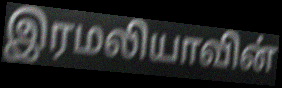
இரமலியாவின்